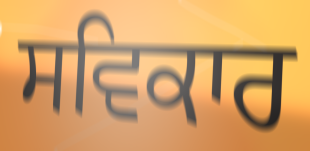
ਸਵਿਕਾਰ